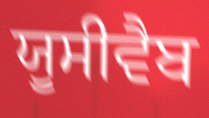
ਯੂਸੀਵੈਬ